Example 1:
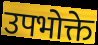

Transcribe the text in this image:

उपभोक्ते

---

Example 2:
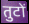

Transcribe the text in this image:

तुटों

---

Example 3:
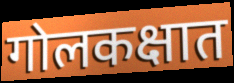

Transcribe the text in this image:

गोलकक्षात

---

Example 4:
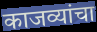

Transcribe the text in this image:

काजव्यांचा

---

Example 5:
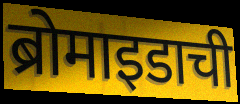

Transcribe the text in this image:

ब्रोमाइडाची